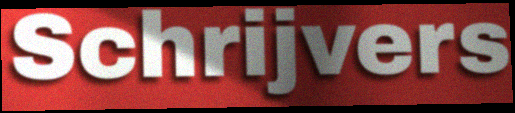
Schrijvers